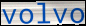
volvo